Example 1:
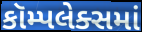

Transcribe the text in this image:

કૉમ્પલેક્સમાં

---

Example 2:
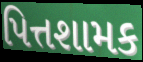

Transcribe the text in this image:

પિત્તશામક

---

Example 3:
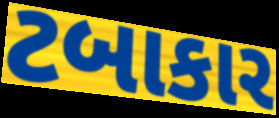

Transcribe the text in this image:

ટબાકાર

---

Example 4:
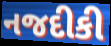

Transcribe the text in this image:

નજદીકી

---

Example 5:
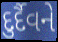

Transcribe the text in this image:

દુર્દૈવને